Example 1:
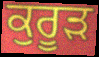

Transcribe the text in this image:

ਕੁਰੂੜ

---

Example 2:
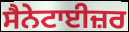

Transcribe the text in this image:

ਸੈਨੇਟਾਈਜ਼ਰ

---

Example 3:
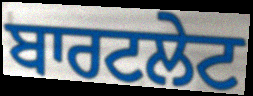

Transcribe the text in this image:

ਬਾਰਟਲੇਟ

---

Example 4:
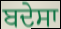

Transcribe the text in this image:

ਬਦੇਸਾ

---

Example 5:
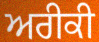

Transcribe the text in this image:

ਅਰੀਕੀ